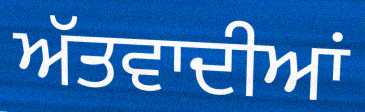
ਅੱਤਵਾਦੀਆਂ